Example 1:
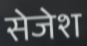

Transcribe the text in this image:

सेजेश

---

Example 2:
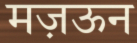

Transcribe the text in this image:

मज़ऊन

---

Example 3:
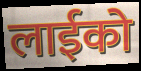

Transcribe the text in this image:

लाईको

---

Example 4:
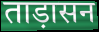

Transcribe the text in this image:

ताड़ासन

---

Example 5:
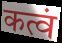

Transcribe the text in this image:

कत्वं